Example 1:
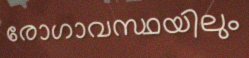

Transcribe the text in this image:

രോഗാവസ്ഥയിലും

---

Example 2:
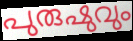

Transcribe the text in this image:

പുരുഷുവും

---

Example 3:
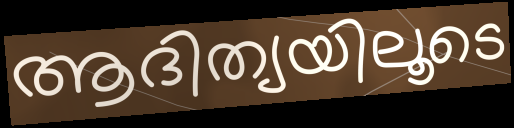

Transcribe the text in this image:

ആദിത്യയിലൂടെ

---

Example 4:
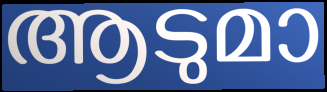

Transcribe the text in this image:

ആടുമാ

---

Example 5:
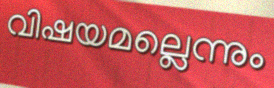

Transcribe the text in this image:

വിഷയമല്ലെന്നും